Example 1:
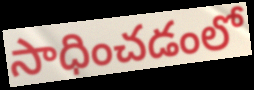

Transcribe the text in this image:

సాధించడంలో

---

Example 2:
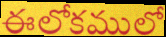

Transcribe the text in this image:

ఈలోకములో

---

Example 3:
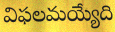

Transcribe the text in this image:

విఫలమయ్యేది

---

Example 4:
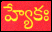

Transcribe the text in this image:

హ్యేకః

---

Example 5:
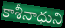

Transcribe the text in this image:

కాశీనాధుని